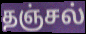
தஞ்சல்